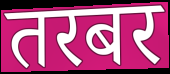
तरबर